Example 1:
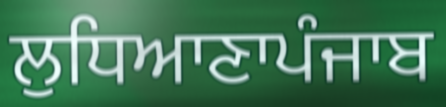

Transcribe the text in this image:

ਲੁਧਿਆਣਾਪੰਜਾਬ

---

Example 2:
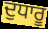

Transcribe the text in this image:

ਦੁਧਾਰੂ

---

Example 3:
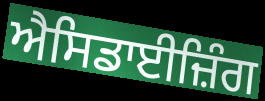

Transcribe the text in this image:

ਐਸਿਡਾਈਜ਼ਿੰਗ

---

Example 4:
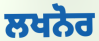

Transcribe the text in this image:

ਲਖਨੋਰ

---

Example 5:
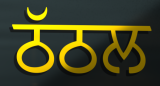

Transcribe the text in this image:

ਠੱਠਲ